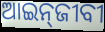
ଆଇନ୍‌ଜୀବୀ